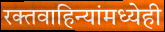
रक्तवाहिन्यांमध्येही